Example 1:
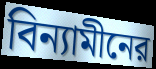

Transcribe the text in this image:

বিন্যামীনের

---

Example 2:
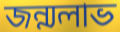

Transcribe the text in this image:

জন্মলাভ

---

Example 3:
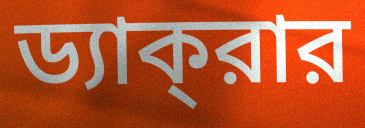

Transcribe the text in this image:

ড্যাক্‌রার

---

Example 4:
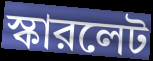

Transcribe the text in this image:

স্কারলেট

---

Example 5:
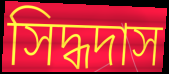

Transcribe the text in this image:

সিদ্ধদাস